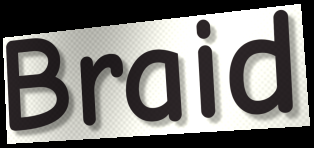
Braid